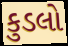
કુડલો